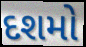
દશમો